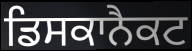
ਡਿਸਕਾਨੈਕਟ